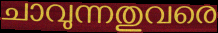
ചാവുന്നതുവരെ